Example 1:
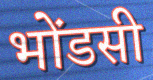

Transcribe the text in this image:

भोंडसी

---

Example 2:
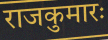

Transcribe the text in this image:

राजकुमारः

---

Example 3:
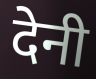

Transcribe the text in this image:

देनी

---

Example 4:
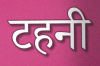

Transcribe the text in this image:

टहनी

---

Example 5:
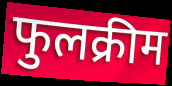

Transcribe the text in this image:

फुलक्रीम